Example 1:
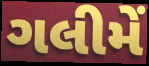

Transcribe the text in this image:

ગલીમેં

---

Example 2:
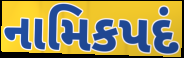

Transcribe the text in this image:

નામિકપદં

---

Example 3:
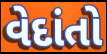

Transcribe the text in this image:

વેદાંતો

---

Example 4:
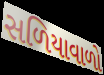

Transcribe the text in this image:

સળિયાવાળો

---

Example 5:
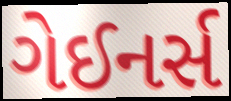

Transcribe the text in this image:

ગેઈનર્સ